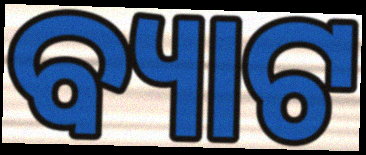
ବ୍ୟାଟ